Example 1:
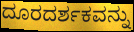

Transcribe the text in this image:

ದೂರದರ್ಶಕವನ್ನು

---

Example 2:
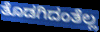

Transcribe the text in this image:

ತೊಡಗಿದಂತೆಲ್ಲ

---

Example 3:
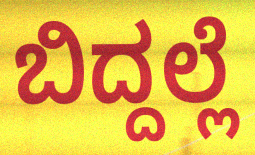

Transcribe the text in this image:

ಬಿದ್ದಲ್ಲೆ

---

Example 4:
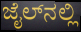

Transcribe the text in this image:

ಜೈಲ್‌ನಲ್ಲಿ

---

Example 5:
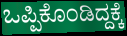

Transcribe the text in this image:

ಒಪ್ಪಿಕೊಂಡಿದ್ದಕ್ಕೆ